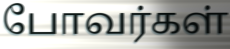
போவர்கள்